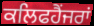
ਕਲਿਫਹੈਂਜਰਾਂ